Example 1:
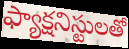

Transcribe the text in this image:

ఫ్యాక్షనిస్టులతో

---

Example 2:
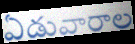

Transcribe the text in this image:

ఏడువారాల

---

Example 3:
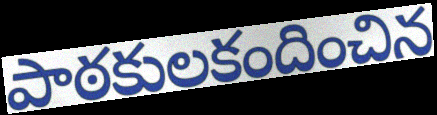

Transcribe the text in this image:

పాఠకులకందించిన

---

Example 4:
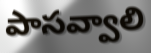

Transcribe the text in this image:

పాసవ్వాలి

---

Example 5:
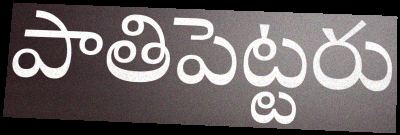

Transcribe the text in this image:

పాతిపెట్టరు